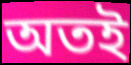
অতই